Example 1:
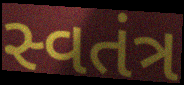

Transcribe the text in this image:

સ્વતંત્ર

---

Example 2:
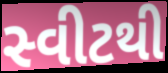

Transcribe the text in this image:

સ્વીટથી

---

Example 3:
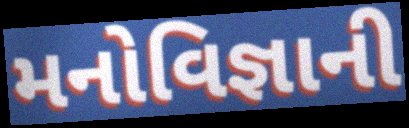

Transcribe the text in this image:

મનોવિજ્ઞાની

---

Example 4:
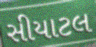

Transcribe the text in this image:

સીયાટલ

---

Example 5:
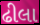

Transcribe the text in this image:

ઢીલા